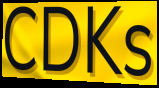
CDKs